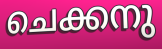
ചെക്കനു